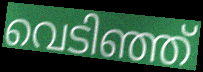
വെടിഞ്ഞ്